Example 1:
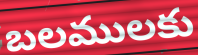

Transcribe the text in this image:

బలములకు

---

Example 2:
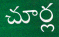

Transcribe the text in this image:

చూర్ల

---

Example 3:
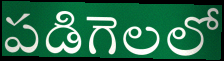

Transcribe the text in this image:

పడిగెలలో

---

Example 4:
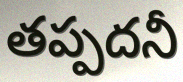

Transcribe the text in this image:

తప్పదనీ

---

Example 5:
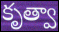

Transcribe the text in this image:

కృత్వా